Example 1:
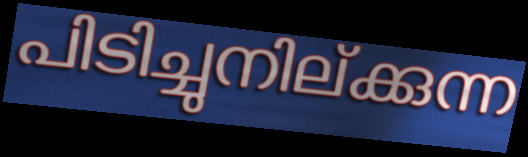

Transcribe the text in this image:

പിടിച്ചുനില്ക്കുന്ന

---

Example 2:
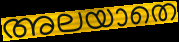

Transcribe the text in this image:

അലയാതെ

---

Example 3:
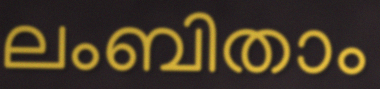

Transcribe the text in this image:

ലംബിതാം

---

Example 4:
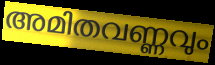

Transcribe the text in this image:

അമിതവണ്ണവും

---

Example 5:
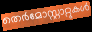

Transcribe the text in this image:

തെർമോസ്റ്റാറ്റുകൾ